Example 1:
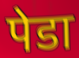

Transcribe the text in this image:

पेडा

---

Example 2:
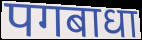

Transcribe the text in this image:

पगबाधा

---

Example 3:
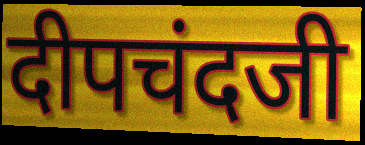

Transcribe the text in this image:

दीपचंदजी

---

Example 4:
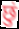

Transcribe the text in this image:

छुं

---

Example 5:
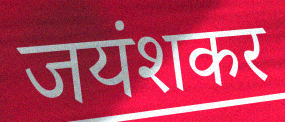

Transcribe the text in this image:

जयंशकर